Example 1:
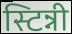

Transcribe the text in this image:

स्टिन्नी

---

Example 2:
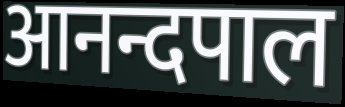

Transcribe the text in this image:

आनन्दपाल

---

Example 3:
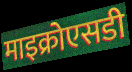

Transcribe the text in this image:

माइक्रोएसडी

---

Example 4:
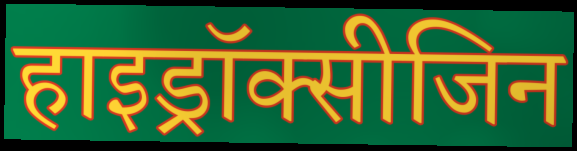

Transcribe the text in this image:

हाइड्रॉक्सीजिन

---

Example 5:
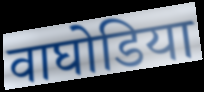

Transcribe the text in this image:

वाघोडिया